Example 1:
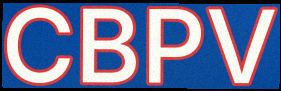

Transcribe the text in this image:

CBPV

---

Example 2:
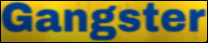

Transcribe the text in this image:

Gangster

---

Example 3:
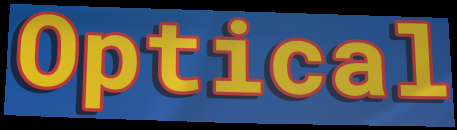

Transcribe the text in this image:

Optical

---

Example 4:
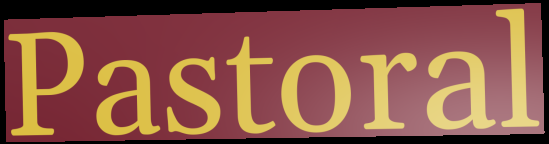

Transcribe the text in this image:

Pastoral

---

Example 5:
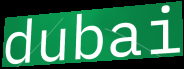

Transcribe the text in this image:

dubai